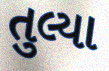
તુલ્યા